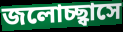
জলোচ্ছ্বাসে